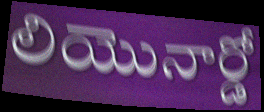
లియొనార్డో